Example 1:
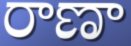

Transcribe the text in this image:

రాణా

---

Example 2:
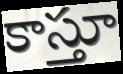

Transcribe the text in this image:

కాస్తూ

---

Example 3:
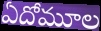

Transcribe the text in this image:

ఏదోమూల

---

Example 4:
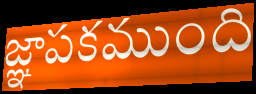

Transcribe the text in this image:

జ్ఞాపకముంది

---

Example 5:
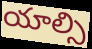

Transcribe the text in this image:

యాల్సి